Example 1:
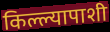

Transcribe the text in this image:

किल्ल्यापाशी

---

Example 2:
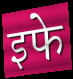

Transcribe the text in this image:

इफे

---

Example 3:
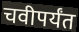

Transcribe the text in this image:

चवीपर्यंत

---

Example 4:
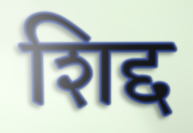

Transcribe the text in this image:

शिद्द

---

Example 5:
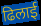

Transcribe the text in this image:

ढिलाई